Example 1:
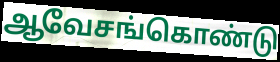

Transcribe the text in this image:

ஆவேசங்கொண்டு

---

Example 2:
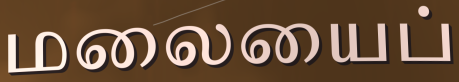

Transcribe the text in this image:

மலையைப்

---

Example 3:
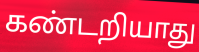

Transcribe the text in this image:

கண்டறியாது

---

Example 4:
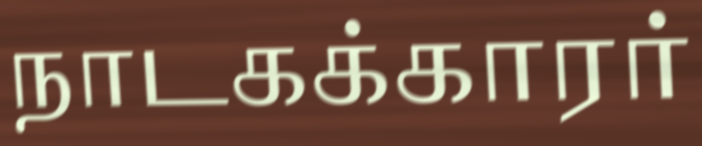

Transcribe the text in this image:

நாடகக்காரர்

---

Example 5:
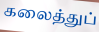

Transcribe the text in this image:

கலைத்துப்